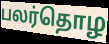
பலர்தொழ